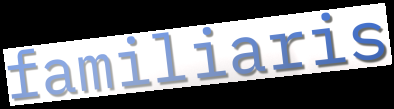
familiaris